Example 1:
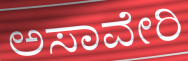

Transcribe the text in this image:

ಅಸಾವೇರಿ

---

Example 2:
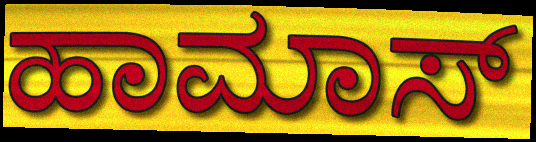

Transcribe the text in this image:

ಹಾಮಾಸ್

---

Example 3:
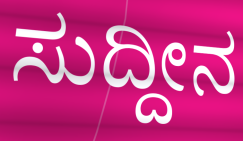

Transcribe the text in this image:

ಸುದ್ದೀನ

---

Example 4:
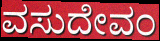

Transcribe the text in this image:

ವಸುದೇವಂ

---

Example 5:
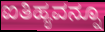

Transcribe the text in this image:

ಐತಿಹ್ಯವನ್ನೂ